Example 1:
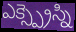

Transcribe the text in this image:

ఎక్స్ప్రెస్ని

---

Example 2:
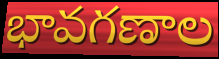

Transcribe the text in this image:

భావగణాల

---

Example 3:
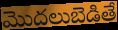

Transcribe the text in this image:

మొదలుబెడితే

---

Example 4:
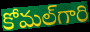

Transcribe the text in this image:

కోమల్‌గారి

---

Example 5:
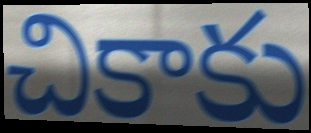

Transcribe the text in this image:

చికాకు